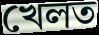
খেলত